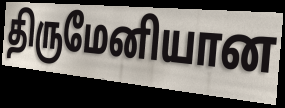
திருமேனியான